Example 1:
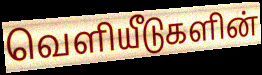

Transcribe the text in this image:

வெளியீடுகளின்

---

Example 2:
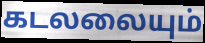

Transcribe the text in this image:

கடலலையும்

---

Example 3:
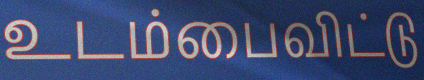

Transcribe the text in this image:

உடம்பைவிட்டு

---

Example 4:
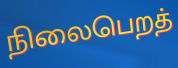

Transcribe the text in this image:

நிலைபெறத்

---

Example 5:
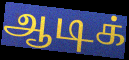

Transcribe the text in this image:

ஆடிக்